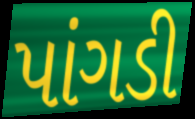
પાંગડી